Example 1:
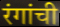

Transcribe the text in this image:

रंगांची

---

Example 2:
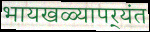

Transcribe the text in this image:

भायखळ्यापर्यंत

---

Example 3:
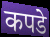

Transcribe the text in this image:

कपडे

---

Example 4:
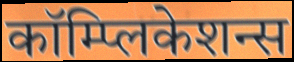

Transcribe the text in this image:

कॉम्प्लिकेशन्स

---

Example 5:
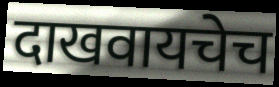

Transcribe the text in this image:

दाखवायचेच